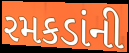
રમકડાંની